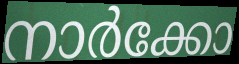
നാർക്കോ